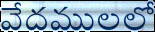
వేదములలో